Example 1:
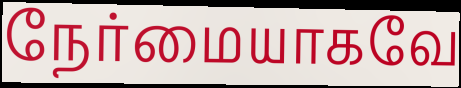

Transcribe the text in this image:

நேர்மையாகவே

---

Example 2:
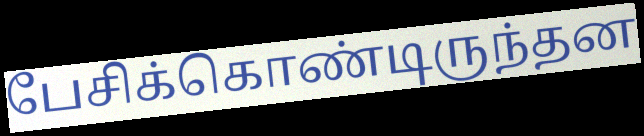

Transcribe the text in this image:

பேசிக்கொண்டிருந்தன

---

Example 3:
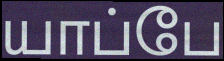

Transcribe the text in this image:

யாப்பே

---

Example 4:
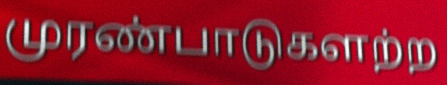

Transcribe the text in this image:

முரண்பாடுகளற்ற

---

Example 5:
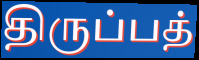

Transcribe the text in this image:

திருப்பத்